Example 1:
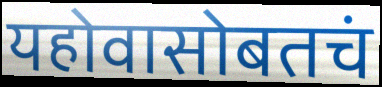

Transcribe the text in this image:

यहोवासोबतचं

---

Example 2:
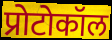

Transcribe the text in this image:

प्रोटोकॉल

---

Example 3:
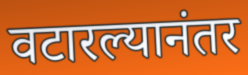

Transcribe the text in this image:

वटारल्यानंतर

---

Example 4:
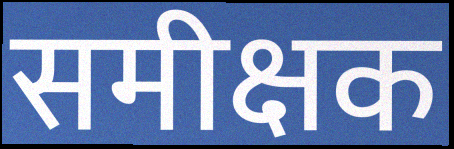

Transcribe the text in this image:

समीक्षक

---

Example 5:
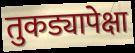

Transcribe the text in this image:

तुकड्यापेक्षा